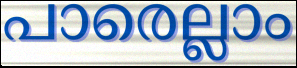
പാരെല്ലാം